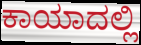
ಕಾಯಾದಲ್ಲಿ